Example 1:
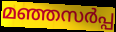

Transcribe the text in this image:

മഞ്ഞസർപ്പ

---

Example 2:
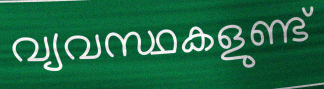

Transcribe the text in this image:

വ്യവസ്ഥകളുണ്ട്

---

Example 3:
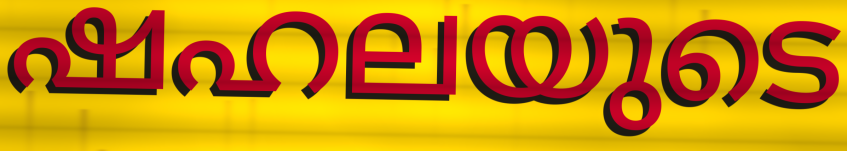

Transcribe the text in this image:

ഷഹലയുടെ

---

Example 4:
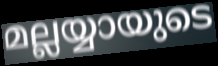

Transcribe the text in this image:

മല്ലയ്യായുടെ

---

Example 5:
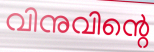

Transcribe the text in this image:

വിനുവിന്റെ